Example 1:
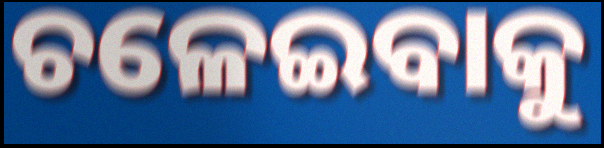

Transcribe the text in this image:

ଚଳେଇବାକୁ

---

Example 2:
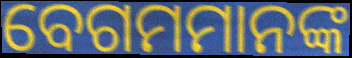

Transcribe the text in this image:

ବେଗମମାନଙ୍କ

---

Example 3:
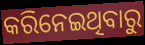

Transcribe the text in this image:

କରିନେଇଥିବାରୁ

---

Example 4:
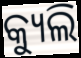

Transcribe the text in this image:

କ୍ୟୁଲି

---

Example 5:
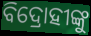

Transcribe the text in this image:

ବିଦ୍ରୋହୀଙ୍କୁ